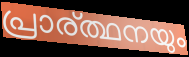
പ്രാര്ത്ഥനയും